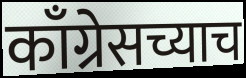
काँग्रेसच्याच